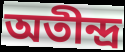
অতীন্দ্র